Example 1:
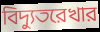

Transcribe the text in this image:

বিদ্যুতরেখার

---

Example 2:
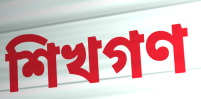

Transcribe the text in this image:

শিখগণ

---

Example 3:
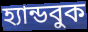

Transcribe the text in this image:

হ্যান্ডবুক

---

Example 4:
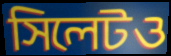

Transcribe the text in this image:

সিলেটও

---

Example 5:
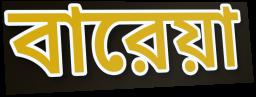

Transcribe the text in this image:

বারেয়া